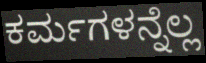
ಕರ್ಮಗಳನ್ನೆಲ್ಲ